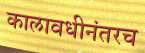
कालावधीनंतरच